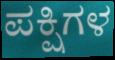
ಪಕ್ಷಿಗಳ